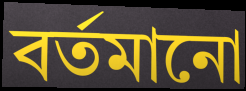
বৰ্তমানো